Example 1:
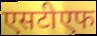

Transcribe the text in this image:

एसटीएफ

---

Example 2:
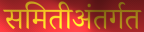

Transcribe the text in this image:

समितीअंतर्गत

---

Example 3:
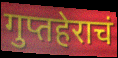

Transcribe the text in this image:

गुप्तहेराचं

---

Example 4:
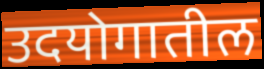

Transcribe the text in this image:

उदयोगातील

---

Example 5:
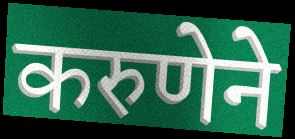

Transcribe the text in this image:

करुणेने